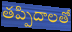
తప్పిదాలతో